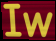
Iw